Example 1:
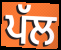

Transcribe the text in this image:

ਪੱਲ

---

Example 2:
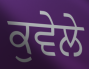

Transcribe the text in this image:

ਕੁਵੇਲੇ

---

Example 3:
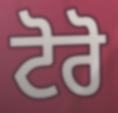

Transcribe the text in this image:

ਟੋਰੋ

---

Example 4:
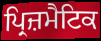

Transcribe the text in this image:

ਪ੍ਰਿਜ਼ਮੈਟਿਕ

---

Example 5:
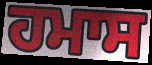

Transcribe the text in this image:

ਹਮਾਸ